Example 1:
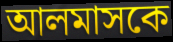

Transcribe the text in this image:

আলমাসকে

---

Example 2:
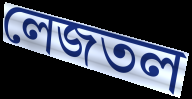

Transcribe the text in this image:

লেজতল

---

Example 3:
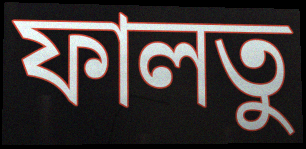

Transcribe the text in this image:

ফালতু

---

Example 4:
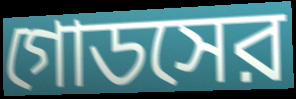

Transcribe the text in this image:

গোডসের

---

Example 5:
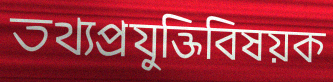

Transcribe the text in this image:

তথ্যপ্রযুক্তিবিষয়ক